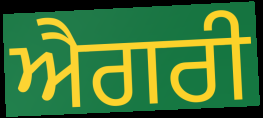
ਐਗਰੀ